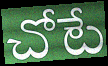
చోటే